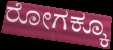
ರೋಗಕ್ಕೂ